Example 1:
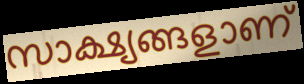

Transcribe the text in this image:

സാക്ഷ്യങ്ങളാണ്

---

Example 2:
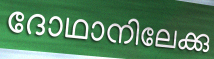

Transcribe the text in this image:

ദോഥാനിലേക്കു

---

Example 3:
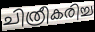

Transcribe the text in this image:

ചിത്രീകരിച്ച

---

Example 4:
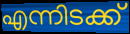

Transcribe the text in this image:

എന്നിടക്ക്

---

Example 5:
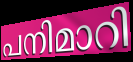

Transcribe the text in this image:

പനിമാറി